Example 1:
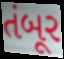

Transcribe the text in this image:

તંબૂર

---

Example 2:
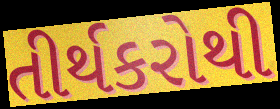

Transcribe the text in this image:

તીર્થકરોથી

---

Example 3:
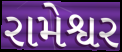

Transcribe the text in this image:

રામેશ્વર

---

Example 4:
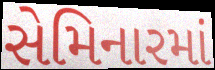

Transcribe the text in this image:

સેમિનારમાં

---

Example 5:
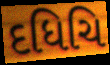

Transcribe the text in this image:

દધિચિ